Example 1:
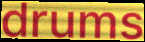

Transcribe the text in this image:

drums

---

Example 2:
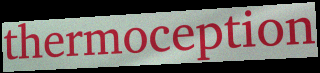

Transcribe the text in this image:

thermoception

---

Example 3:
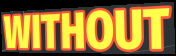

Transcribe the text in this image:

WITHOUT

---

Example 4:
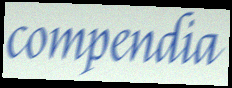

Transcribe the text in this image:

compendia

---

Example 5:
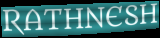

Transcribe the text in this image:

RATHNESH